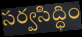
సర్వసిద్ధిం